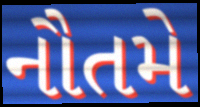
નૌતમે